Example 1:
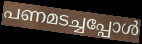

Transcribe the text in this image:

പണമടച്ചപ്പോൾ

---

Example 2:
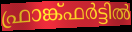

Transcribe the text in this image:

ഫ്രാങ്ക്ഫർട്ടിൽ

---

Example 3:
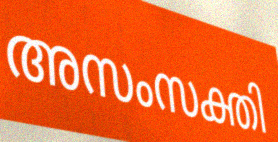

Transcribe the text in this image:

അസംസക്തി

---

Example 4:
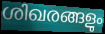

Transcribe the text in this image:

ശിഖരങ്ങളും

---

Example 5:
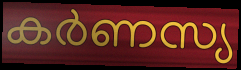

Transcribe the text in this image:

കർണസ്യ